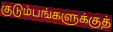
குடும்பங்களுக்குத்